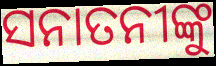
ସନାତନୀଙ୍କୁ